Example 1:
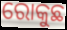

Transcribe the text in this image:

ରୋକୁଛ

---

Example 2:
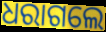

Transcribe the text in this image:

ଧରାଗଲେ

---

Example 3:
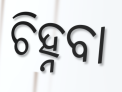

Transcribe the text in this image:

ଚିହ୍ନବା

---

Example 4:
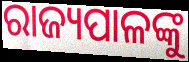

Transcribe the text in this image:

ରାଜ୍ୟପାଳଙ୍କୁ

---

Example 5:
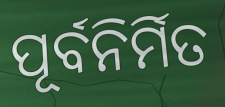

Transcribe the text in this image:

ପୂର୍ବନିର୍ମିତ